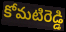
కోమటిరెడ్డి